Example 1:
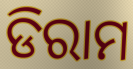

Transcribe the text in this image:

ଡିରାମ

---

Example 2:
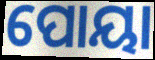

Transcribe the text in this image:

ପୋୟା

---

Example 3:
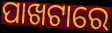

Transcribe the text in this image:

ପାଖଟାରେ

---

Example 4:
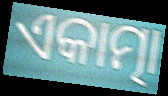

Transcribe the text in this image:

ଏକାତ୍ମା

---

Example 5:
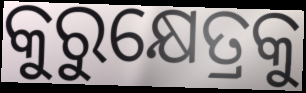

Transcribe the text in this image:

କୁରୁକ୍ଷେତ୍ରକୁ